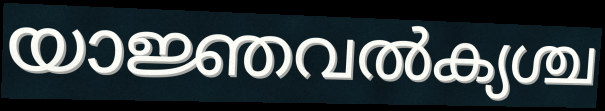
യാജ്ഞവൽക്യശ്ച